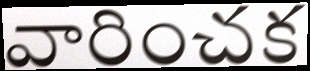
వారించక